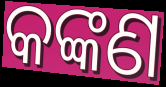
କଙ୍କଣ